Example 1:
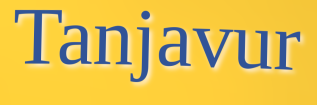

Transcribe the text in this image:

Tanjavur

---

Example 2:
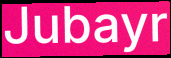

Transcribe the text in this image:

Jubayr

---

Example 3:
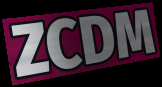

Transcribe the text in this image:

ZCDM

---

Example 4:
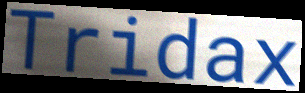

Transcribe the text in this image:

Tridax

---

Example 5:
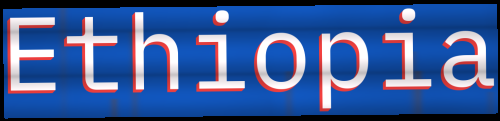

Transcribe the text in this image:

Ethiopia